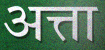
अत्ता